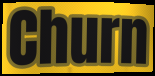
Churn